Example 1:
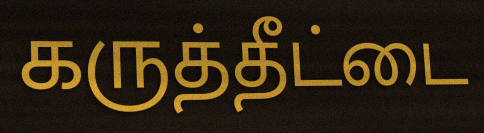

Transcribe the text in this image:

கருத்தீட்டை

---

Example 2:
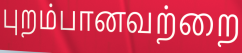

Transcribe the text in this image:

புறம்பானவற்றை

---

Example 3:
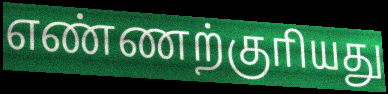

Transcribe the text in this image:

எண்ணற்குரியது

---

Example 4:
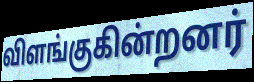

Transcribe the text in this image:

விளங்குகின்றனர்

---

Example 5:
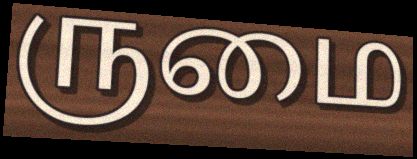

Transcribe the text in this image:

ருமை